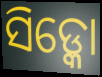
ସିଡ୍କୋ